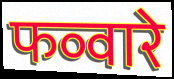
फव्‍वारे